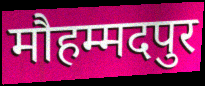
मौहम्मदपुर